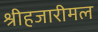
श्रीहजारीमल